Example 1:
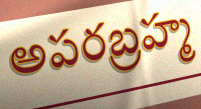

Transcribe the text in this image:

అపరబ్రహ్మ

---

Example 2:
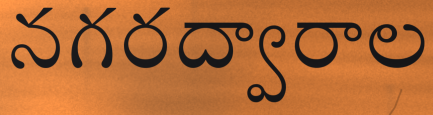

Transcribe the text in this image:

నగరద్వారాల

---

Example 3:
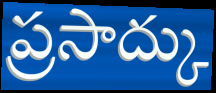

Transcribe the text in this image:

ప్రసాద్కు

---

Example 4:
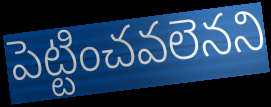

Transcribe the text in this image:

పెట్టించవలెనని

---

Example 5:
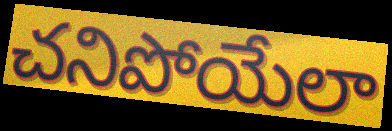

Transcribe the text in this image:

చనిపోయేలా